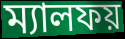
ম্যালফয়